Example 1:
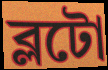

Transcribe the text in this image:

ব্লটো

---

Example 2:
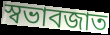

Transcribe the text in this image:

স্বভাবজাত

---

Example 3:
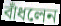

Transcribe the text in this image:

বাঁধলেন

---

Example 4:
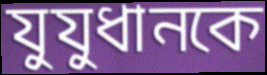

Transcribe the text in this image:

যুযুধানকে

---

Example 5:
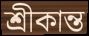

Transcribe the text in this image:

শ্রীকান্ত